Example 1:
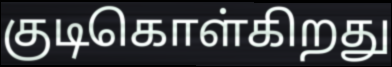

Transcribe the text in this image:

குடிகொள்கிறது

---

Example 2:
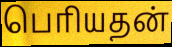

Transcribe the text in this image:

பெரியதன்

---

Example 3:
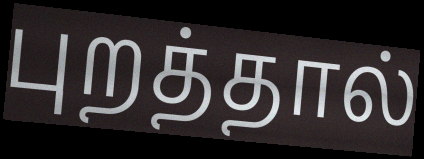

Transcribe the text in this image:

புறத்தால்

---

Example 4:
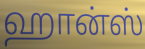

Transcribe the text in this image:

ஹான்ஸ்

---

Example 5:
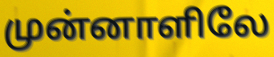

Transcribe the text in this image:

முன்னாளிலே